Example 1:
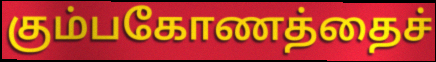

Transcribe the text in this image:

கும்பகோணத்தைச்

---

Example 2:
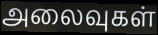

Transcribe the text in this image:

அலைவுகள்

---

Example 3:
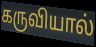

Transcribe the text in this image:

கருவியால்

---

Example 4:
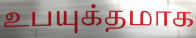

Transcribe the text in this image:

உபயுக்தமாக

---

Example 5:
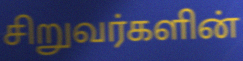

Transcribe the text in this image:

சிறுவர்களின்